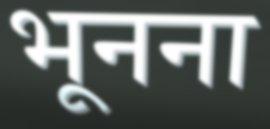
भूनना